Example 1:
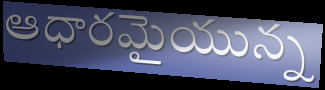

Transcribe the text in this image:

ఆధారమైయున్న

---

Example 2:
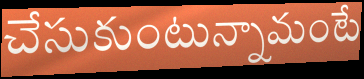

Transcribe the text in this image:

చేసుకుంటున్నామంటే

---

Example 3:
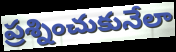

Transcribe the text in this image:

ప్రశ్నించుకునేలా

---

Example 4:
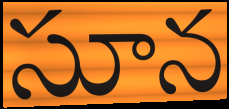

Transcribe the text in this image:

సూన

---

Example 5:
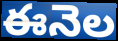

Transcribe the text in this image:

ఈనెల